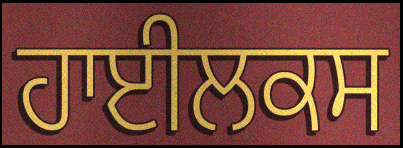
ਹਾਈਲਕਸ